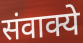
संवाक्ये